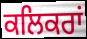
ਕਲਿਕਰਾਂ